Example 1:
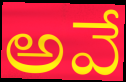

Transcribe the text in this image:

అవే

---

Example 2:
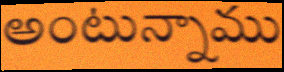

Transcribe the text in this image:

అంటున్నాము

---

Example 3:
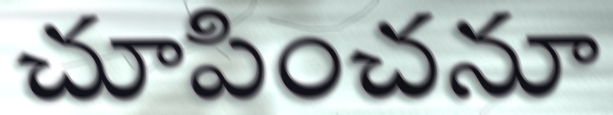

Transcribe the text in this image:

చూపించనూ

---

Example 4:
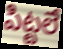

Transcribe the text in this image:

పిట్టలే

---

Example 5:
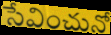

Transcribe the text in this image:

సేవించునో